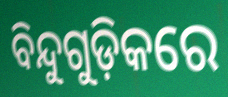
ବିନ୍ଦୁଗୁଡ଼ିକରେ